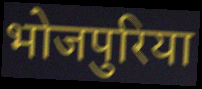
भोजपुरिया